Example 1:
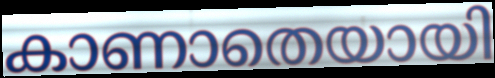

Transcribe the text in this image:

കാണാതെയായി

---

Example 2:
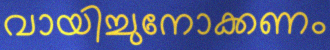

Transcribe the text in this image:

വായിച്ചുനോക്കണം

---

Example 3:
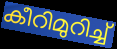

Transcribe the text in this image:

കീറിമുറിച്ച്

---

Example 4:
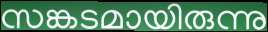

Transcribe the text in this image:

സങ്കടമായിരുന്നു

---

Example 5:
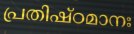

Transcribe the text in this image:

പ്രതിഷ്ഠമാനഃ